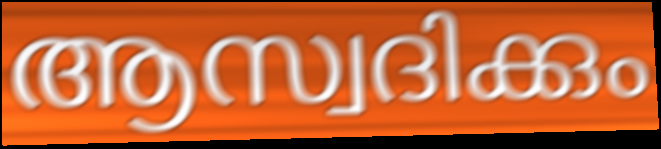
ആസ്വദിക്കും